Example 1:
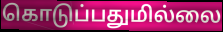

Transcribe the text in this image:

கொடுப்பதுமில்லை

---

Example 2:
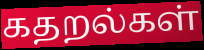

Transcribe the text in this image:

கதறல்கள்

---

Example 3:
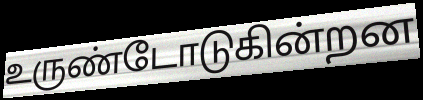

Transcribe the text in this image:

உருண்டோடுகின்றன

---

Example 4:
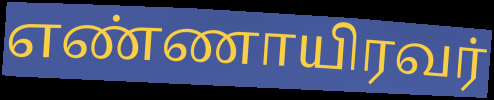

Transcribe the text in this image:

எண்ணாயிரவர்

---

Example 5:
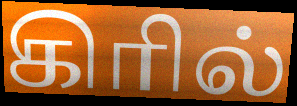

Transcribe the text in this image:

கிரில்